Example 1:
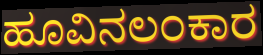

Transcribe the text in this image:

ಹೂವಿನಲಂಕಾರ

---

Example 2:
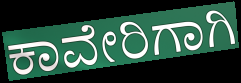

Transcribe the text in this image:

ಕಾವೇರಿಗಾಗಿ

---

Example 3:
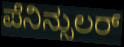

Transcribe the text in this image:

ಪೆನಿನ್ಸುಲರ್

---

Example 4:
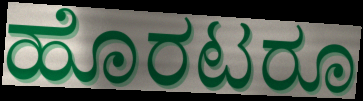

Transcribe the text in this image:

ಹೊರಟರೂ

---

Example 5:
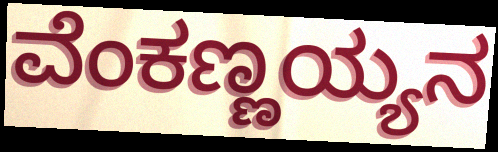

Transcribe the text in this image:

ವೆಂಕಣ್ಣಯ್ಯನ